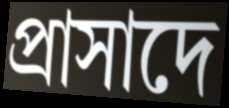
প্রাসাদে